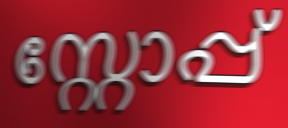
സ്റ്റോപ്പ്